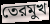
তেরমুখ